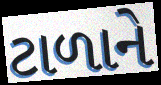
ટાળાને